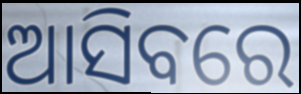
ଆସିବରେ